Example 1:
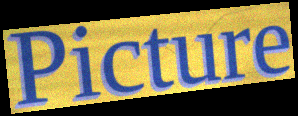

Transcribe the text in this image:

Picture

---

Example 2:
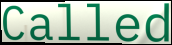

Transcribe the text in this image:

Called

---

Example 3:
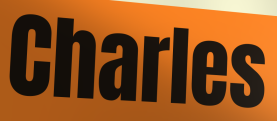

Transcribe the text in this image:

Charles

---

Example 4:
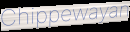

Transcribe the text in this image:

Chippewayan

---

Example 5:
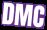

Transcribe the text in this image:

DMC